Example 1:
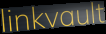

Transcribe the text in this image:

linkvault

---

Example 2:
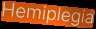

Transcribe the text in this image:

Hemiplegia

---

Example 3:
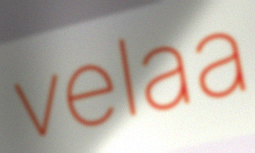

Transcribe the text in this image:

velaa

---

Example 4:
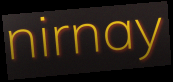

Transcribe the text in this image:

nirnay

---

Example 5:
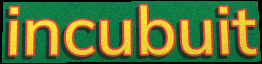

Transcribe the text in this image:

incubuit